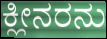
ಕ್ಲೀನರನು